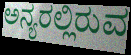
ಅನ್ಯರಲ್ಲಿರುವ